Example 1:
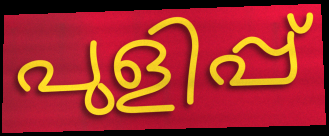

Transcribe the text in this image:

പുളിപ്പ്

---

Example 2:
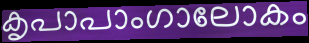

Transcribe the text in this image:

കൃപാപാംഗാലോകം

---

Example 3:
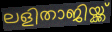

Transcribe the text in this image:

ലളിതാജിയ്ക്ക്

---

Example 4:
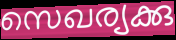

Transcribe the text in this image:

സെഖര്യക്കു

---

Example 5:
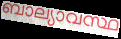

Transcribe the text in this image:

ബാല്യാവസ്ഥ